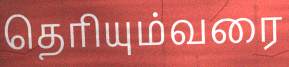
தெரியும்வரை